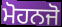
ਮੋਹਨਜੋ